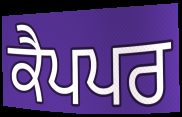
ਕੈਪਪਰ